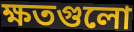
ক্ষতগুলো